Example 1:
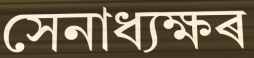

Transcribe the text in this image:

সেনাধ্যক্ষৰ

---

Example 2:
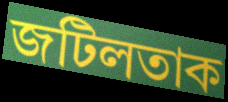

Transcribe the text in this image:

জটিলতাক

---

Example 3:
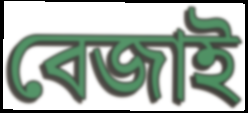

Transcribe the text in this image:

বেজাই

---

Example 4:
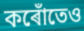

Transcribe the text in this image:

কৰোঁতেও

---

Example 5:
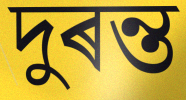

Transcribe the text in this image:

দুৰন্ত